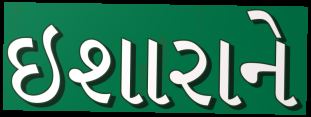
ઇશારાને